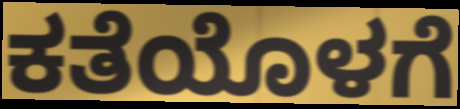
ಕತೆಯೊಳಗೆ